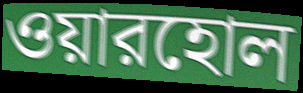
ওয়ারহোল